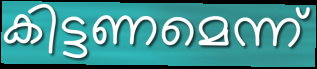
കിട്ടണമെന്ന്